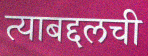
त्याबद्दलची